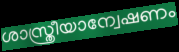
ശാസ്ത്രീയാന്വേഷണം